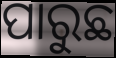
ପାରୁଛ